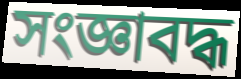
সংজ্ঞাবদ্ধ